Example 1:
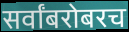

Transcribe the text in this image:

सर्वांबरोबरच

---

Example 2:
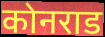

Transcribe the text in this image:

कोनराड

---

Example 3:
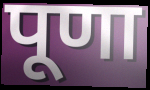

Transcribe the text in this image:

पूणा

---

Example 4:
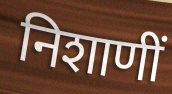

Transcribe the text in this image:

निशाणीं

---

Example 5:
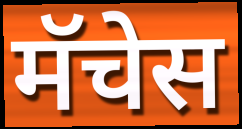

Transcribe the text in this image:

मॅचेस